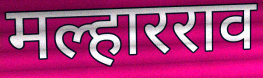
मल्हारराव